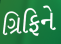
ગ્રિફિને